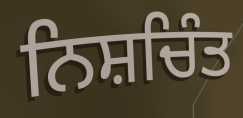
ਨਿਸ਼ਚਿੰਤ